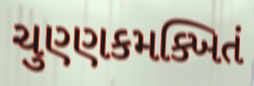
ચુણ્ણકમક્ખિતં